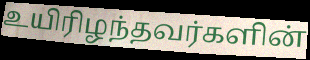
உயிரிழந்தவர்களின்